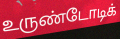
உருண்டோடிக்